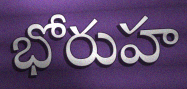
భోరుహ